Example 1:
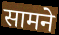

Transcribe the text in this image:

सामने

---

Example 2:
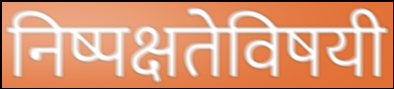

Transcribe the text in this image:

निष्पक्षतेविषयी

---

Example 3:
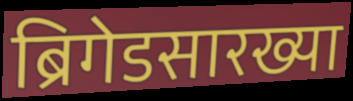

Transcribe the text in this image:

ब्रिगेडसारख्या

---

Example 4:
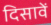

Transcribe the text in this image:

दिसावें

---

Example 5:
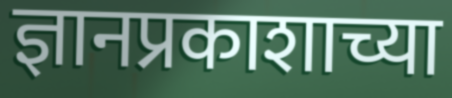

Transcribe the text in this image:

ज्ञानप्रकाशाच्या